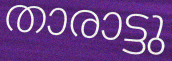
താരാട്ടു